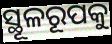
ସ୍ଥୂଳରୂପକୁ